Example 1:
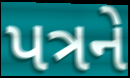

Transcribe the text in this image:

પત્રને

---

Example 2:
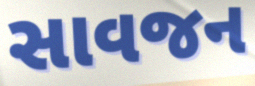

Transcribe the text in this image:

સાવજન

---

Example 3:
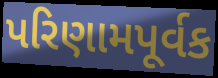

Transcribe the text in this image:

પરિણામપૂર્વક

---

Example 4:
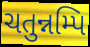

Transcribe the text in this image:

ચતુન્નમ્પિ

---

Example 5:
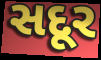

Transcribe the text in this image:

સદૂર